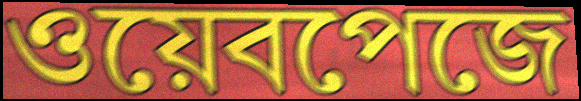
ওয়েবপেজে